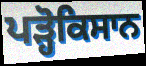
ਪੜ੍ਹੋਕਿਸਾਨ